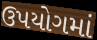
ઉપયોગમાં